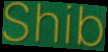
Shib